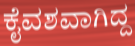
ಕೈವಶವಾಗಿದ್ದ